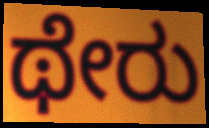
ಥೇರು